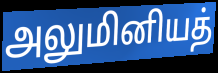
அலுமினியத்